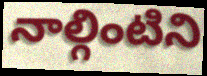
నాల్గింటిని